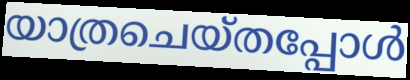
യാത്രചെയ്തപ്പോൾ